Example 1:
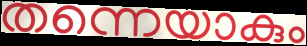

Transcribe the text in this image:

തന്നെയാകും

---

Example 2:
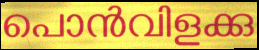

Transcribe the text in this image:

പൊൻവിളക്കു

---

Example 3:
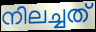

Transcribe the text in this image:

നിലച്ചത്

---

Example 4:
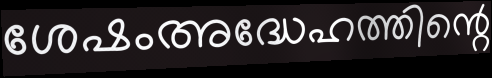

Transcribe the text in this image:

ശേഷംഅദ്ധേഹത്തിന്റെ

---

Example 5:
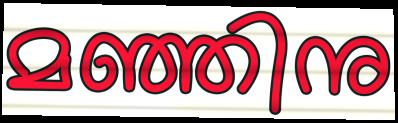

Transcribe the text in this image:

മഞ്ഞിനു